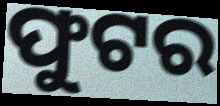
ଫୁଟର